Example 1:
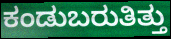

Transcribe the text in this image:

ಕಂಡುಬರುತಿತ್ತು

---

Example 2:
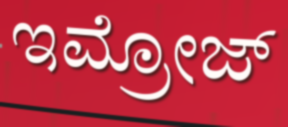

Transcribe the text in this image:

ಇಮ್ರೋಜ್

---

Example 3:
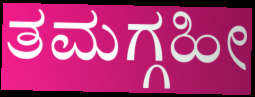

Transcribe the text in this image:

ತಮಗ್ಗಹೀ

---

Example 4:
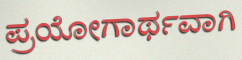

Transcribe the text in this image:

ಪ್ರಯೋಗಾರ್ಥವಾಗಿ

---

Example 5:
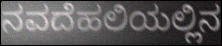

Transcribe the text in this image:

ನವದೆಹಲಿಯಲ್ಲಿನ